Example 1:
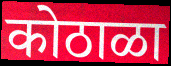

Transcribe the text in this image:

कोठाळा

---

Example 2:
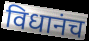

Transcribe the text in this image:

विधानंच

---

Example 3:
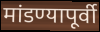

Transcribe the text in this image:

मांडण्यापूर्वी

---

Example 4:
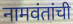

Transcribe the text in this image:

नामवंतांची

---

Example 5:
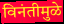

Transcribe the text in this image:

विनंतीमुळे